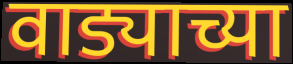
वाड्याच्या